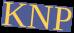
KNP